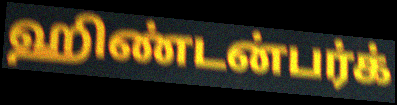
ஹிண்டன்பர்க்